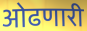
ओढणारी